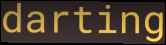
darting